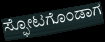
ಸ್ಫೋಟಗೊಂಡಾಗ